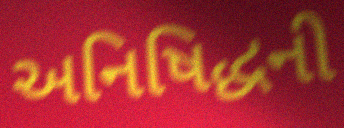
અનિષિદ્ધની